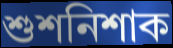
শুশনিশাক